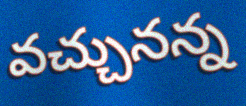
వచ్చునన్న